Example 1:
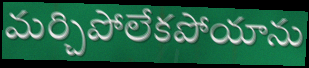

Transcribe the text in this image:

మర్చిపోలేకపోయాను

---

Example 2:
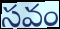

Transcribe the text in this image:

సవం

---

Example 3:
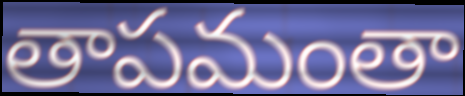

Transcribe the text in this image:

తాపమంతా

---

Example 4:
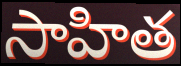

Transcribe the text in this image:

సాహిత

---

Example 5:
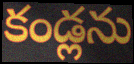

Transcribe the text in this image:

కండ్లను